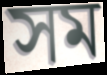
সম